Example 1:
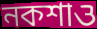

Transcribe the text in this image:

নকশাও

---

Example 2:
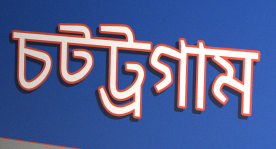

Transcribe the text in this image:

চট্ট্রগাম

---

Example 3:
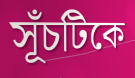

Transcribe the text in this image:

সূঁচটিকে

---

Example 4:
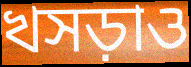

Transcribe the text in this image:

খসড়াও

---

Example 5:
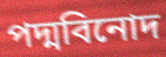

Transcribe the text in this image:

পদ্মবিনোদ